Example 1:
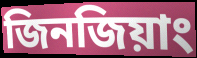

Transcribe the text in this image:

জিনজিয়াং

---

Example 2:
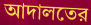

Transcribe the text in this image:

আদালতের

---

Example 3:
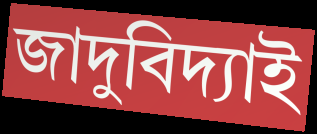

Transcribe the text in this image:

জাদুবিদ্যাই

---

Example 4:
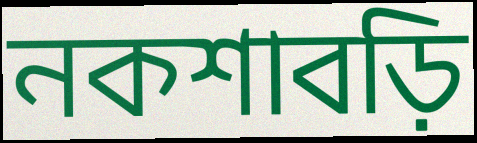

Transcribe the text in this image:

নকশাবড়ি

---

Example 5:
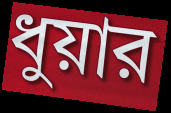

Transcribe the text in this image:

ধুয়ার